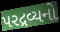
પરદ્રવ્યનો